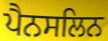
ਪੈਨਸਲਿਨ